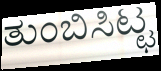
ತುಂಬಿಸಿಟ್ಟ